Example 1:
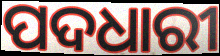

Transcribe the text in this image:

ପଦଧାରୀ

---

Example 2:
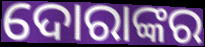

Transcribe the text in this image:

ଦୋରାଙ୍କର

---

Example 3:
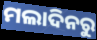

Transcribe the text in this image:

ମଲାଦିନରୁ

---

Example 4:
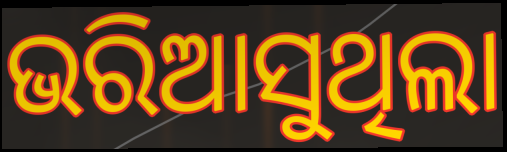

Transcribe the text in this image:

ଭରିଆସୁଥିଲା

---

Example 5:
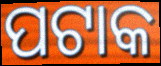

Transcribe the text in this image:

ପଟାକ